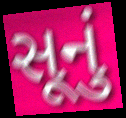
સૂનું